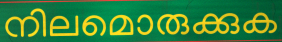
നിലമൊരുക്കുക